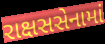
રાક્ષસસેનામાં